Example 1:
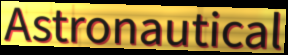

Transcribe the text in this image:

Astronautical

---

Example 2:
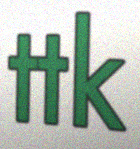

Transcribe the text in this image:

ttk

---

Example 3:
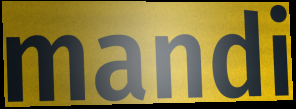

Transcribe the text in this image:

mandi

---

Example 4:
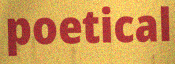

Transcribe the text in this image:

poetical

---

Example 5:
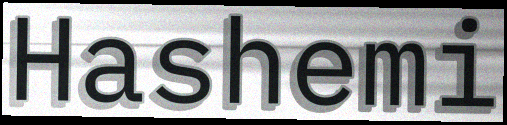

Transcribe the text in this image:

Hashemi